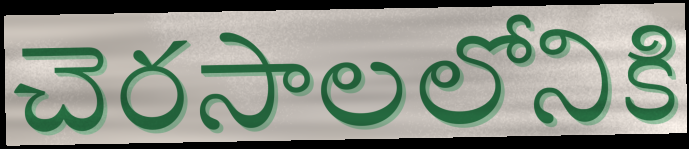
చెరసాలలోనికి